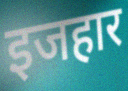
इजहार